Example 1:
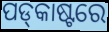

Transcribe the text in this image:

ପଡ୍‌କାଷ୍ଟରେ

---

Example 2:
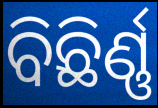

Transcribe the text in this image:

ବିଛିର୍ଣ୍ଣ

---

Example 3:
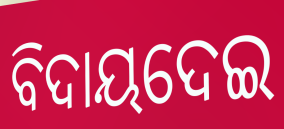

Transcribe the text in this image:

ବିଦାୟଦେଇ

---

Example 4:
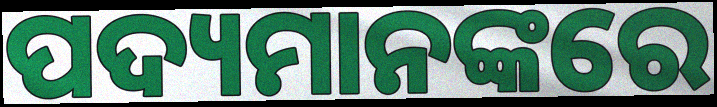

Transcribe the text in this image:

ପଦ୍ୟମାନଙ୍କରେ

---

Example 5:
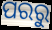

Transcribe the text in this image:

ପରରୁ